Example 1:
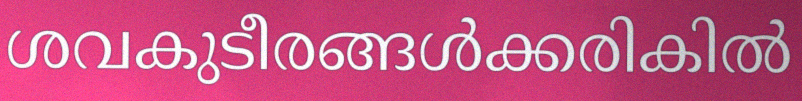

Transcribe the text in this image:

ശവകുടീരങ്ങൾക്കരികിൽ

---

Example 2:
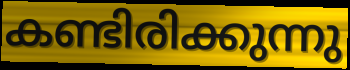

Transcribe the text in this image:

കണ്ടിരിക്കുന്നു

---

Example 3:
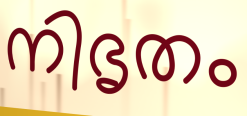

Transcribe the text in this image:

നിഭൃതം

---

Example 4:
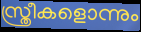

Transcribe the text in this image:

സ്ത്രീകളൊന്നും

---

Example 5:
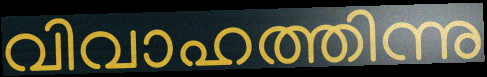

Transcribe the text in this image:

വിവാഹത്തിന്നു